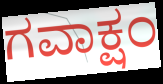
ಗವಾಕ್ಷಂ